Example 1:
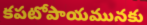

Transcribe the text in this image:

కపటోపాయమునకు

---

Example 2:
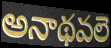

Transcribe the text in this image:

అనాథవలె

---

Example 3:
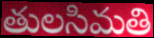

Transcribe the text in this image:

తులసిమతి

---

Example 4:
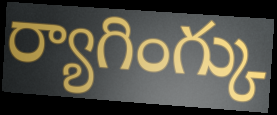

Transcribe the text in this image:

ర్యాగింగ్కు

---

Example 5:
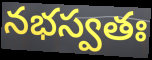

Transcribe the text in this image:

నభస్వతః